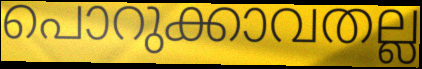
പൊറുക്കാവതല്ല